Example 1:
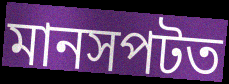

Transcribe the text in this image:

মানসপটত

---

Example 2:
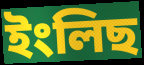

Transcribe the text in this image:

ইংলিছ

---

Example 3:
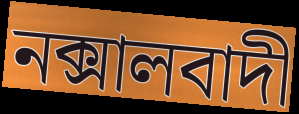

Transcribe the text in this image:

নক্সালবাদী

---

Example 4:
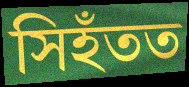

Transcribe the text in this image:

সিহঁতত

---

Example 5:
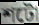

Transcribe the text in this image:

শটো